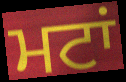
ਮਟਾਂ